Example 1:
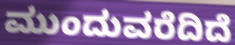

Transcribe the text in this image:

ಮುಂದುವರೆದಿದೆ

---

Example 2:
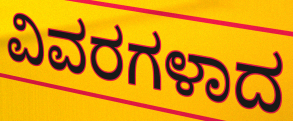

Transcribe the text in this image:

ವಿವರಗಳಾದ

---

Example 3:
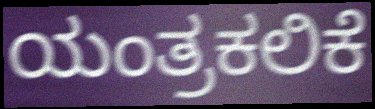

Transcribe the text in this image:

ಯಂತ್ರಕಲಿಕೆ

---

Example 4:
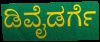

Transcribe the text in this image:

ಡಿವೈಡರ್ಗೆ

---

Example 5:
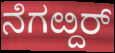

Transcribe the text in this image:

ನೆಗೞ್ದರ್